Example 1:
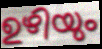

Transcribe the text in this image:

ഉഴിയും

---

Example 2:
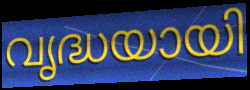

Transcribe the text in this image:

വൃദ്ധയായി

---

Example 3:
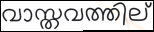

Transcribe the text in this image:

വാസ്തവത്തില്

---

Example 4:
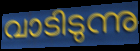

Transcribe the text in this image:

വാടിടുന്നു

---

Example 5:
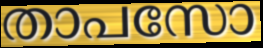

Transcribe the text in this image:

താപസോ